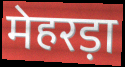
मेहरड़ा